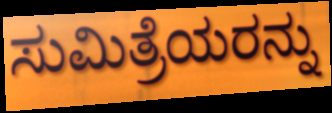
ಸುಮಿತ್ರೆಯರನ್ನು